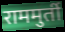
राममुर्ती